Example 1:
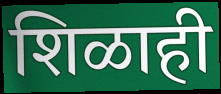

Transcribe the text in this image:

शिळाही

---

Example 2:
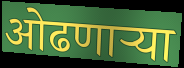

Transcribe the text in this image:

ओढणार्‍या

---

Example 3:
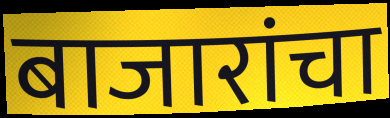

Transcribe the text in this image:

बाजारांचा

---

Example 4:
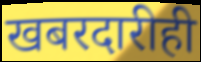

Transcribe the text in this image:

खबरदारीही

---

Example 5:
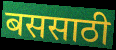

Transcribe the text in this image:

बससाठी